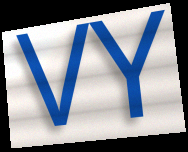
VY